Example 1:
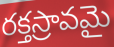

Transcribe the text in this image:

రక్తస్రావమై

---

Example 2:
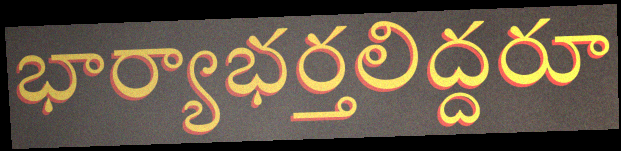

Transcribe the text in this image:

భార్యాభర్తలిద్దరూ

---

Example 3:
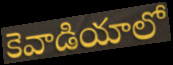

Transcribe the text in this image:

కెవాడియాలో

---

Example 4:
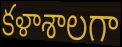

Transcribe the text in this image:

కళాశాలగా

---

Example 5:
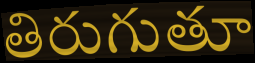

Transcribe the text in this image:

తిరుగుతూ